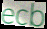
ecb